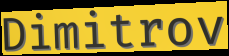
Dimitrov